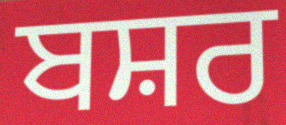
ਬਸ਼ਰ